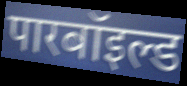
पारबॉइल्ड